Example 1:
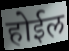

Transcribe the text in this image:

होईल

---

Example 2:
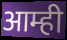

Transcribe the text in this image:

आम्ही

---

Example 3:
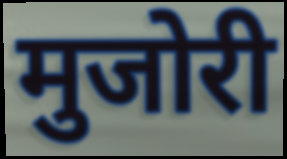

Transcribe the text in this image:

मुजोरी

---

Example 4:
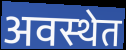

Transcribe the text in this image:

अवस्थेत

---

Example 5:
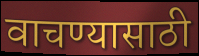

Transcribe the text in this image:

वाचण्यासाठी